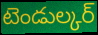
టెండుల్కర్